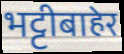
भट्टीबाहेर